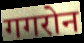
गगरोन